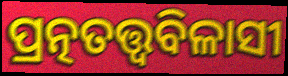
ପ୍ରତ୍ନତତ୍ତ୍ବବିଳାସୀ